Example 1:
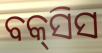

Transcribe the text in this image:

ବକ୍‍ସିସ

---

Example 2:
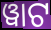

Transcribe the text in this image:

ୱାଟ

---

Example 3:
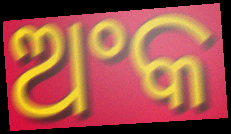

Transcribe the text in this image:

ଅଂକ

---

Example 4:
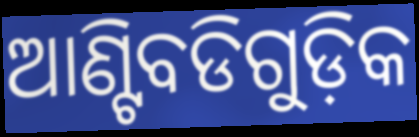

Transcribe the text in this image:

ଆଣ୍ଟିବଡିଗୁଡ଼ିକ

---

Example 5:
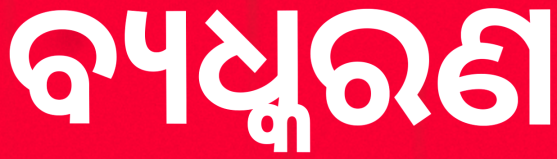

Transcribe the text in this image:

ବ୍ୟଧ୍କରଣ